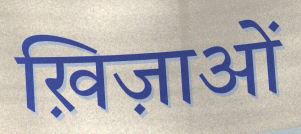
ख़िज़ाओं